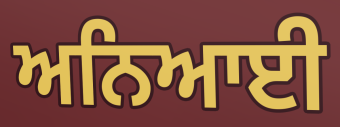
ਅਨਿਆਈ